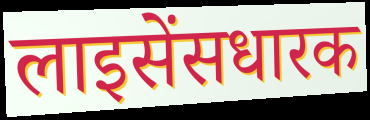
लाइसेंसधारक